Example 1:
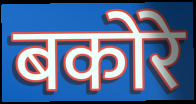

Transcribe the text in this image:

बकोरे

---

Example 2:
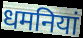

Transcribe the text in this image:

धमनियां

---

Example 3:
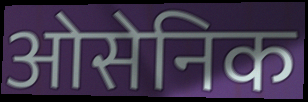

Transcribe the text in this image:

ओसेनिक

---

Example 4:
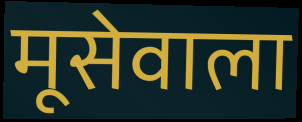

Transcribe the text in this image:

मूसेवाला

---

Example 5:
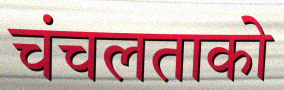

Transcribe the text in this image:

चंचलताको